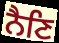
ਨੈਣਿ